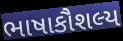
ભાષાકૌશલ્ય